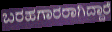
ಬರಹಗಾರರಾಗಿದ್ದಾರೆ